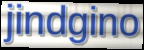
jindgino